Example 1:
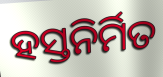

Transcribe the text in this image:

ହସ୍ତନିର୍ମିତ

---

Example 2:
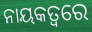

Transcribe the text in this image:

ନାୟକତ୍ବରେ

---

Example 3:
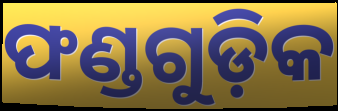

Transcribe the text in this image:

ଫଣ୍ଡଗୁଡ଼ିକ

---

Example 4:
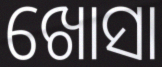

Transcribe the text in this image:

ଖୋସା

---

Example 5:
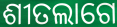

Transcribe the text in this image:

ଶୀତଲାଗେ